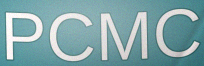
PCMC